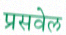
प्रसवेल